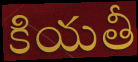
కియతీ